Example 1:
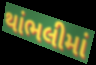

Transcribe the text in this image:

થાંભલીમાં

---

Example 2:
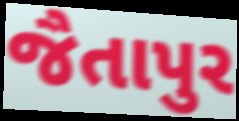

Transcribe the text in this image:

જૈતાપુર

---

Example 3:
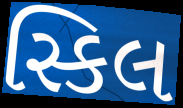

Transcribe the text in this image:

સ્કિલ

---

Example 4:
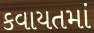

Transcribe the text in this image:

કવાયતમાં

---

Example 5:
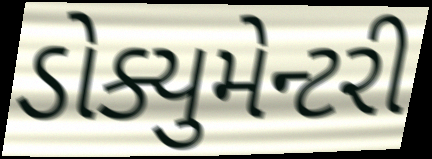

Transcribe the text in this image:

ડોક્યુમેન્ટરી